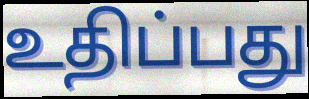
உதிப்பது